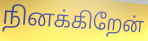
நினக்கிறேன்